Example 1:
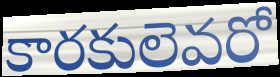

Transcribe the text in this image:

కారకులెవరో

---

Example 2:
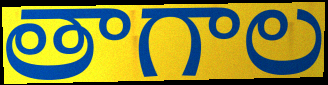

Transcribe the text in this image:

తాగాల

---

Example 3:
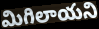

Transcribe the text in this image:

మిగిలాయని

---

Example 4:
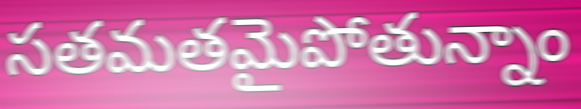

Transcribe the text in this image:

సతమతమైపోతున్నాం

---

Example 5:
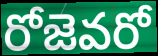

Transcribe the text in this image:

రోజెవరో